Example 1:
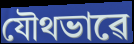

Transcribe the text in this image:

যৌথভাৱে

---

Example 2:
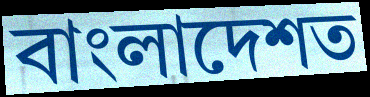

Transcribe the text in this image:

বাংলাদেশত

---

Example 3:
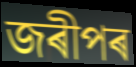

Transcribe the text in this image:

জৰীপৰ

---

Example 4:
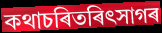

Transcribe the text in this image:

কথাচৰিতৰিৎসাগৰ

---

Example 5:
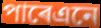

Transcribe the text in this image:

পাৰেএনে